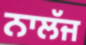
ਨਾਲੱਜ